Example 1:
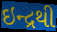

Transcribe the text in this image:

ઇન્દ્રથી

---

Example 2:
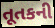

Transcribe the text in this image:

તૂતકની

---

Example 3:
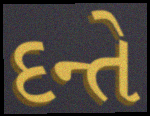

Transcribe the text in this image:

દન્તે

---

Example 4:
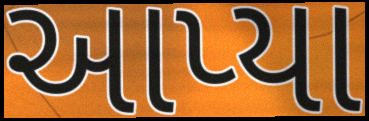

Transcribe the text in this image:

આપ્યા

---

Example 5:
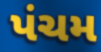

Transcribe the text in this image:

પંચમ